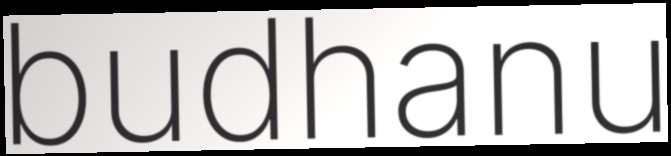
budhanu